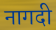
नागदी